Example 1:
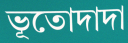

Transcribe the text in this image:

ভূতোদাদা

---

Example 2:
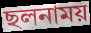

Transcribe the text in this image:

ছলনাময়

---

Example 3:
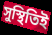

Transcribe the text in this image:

সুস্থিতিই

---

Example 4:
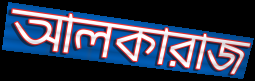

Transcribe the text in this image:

আলকারাজ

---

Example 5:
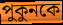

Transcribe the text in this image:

পুকুনকে